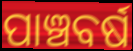
ପାଞ୍ଚବର୍ଷ